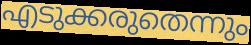
എടുക്കരുതെന്നും